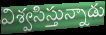
విశ్వసిస్తున్నాడు